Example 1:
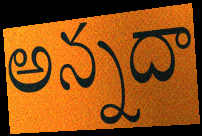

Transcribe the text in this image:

అన్నదా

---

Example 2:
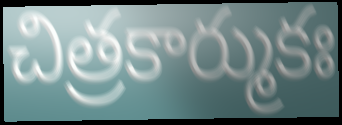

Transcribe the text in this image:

చిత్రకార్ముకః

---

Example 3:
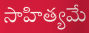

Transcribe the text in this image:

సాహిత్యమే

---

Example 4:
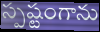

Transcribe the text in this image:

స్పష్టంగాను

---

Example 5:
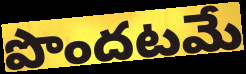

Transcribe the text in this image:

పొందటమే